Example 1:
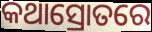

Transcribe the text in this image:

କଥାସ୍ରୋତରେ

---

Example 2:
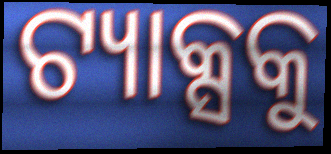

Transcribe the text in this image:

ଟ୍ୟାକ୍ସକୁ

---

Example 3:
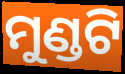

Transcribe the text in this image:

ମୁଣ୍ଡଟି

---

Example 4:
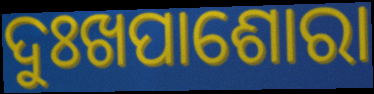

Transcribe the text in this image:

ଦୁଃଖପାଶୋରା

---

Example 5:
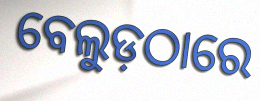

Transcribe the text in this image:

ବେଲୁଡ଼ଠାରେ